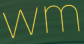
wm